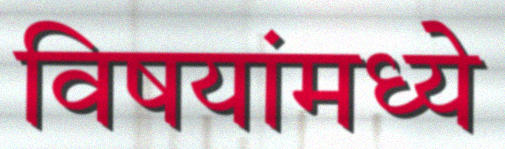
विषयांमध्ये